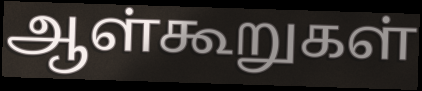
ஆள்கூறுகள்